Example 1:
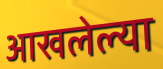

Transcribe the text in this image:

आखलेल्या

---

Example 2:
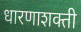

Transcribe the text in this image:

धारणाशक्ती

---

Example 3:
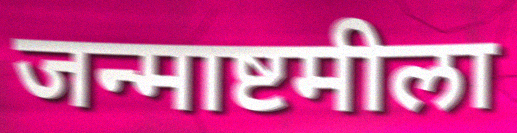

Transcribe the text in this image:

जन्माष्टमीला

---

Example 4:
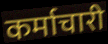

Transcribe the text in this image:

कर्माचारी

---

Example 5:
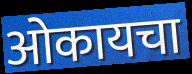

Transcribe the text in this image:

ओकायचा